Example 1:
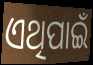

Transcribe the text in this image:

ଏଥିପାଇଁ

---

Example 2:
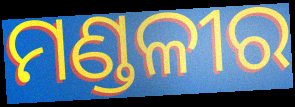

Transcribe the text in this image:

ମଣ୍ଡଳୀର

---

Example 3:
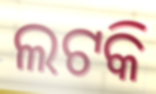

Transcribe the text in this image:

ଲଟକି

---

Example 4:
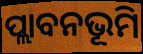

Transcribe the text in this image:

ପ୍ଲାବନଭୂମି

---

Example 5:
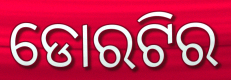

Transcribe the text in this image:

ଡୋରଟିର